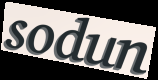
sodun